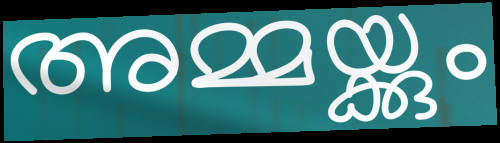
അമ്മയ്ക്കും